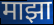
माझा